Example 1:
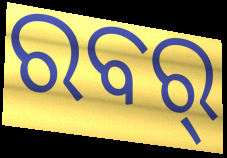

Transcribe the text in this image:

ରବର୍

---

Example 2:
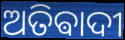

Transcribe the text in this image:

ଅତିଵାଦୀ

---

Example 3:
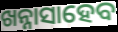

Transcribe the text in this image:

ଖନ୍ନାସାହେବ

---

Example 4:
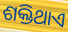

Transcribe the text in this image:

ଶକ୍ତିଥାଏ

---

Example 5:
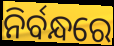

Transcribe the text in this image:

ନିର୍ବନ୍ଧରେ